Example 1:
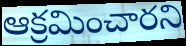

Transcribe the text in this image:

ఆక్రమించారని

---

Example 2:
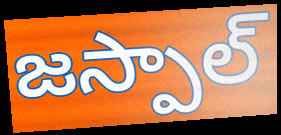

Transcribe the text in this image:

జస్పాల్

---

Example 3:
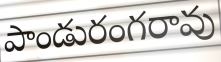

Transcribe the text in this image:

పాండురంగరావు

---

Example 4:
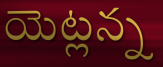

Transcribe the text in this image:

యెట్లన్న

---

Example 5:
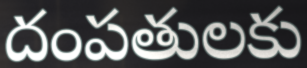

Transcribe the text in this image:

దంపతులకు